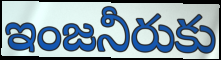
ఇంజనీరుకు